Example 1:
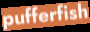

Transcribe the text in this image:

pufferfish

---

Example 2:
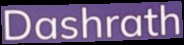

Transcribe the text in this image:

Dashrath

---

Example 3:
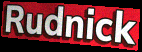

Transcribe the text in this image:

Rudnick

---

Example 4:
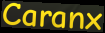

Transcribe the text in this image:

Caranx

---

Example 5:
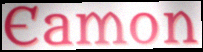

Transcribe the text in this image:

Eamon